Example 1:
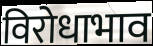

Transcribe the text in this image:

विरोधाभाव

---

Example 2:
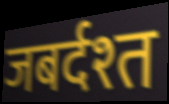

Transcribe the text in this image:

जबर्दश्त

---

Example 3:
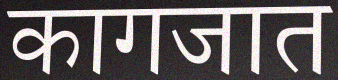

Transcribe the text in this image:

कागजात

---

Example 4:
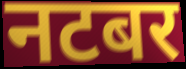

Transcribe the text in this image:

नटबर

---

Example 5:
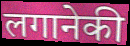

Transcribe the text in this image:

लगानेकी